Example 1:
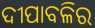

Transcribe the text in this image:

ଦୀପାବଳିର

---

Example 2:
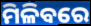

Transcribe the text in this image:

ମିଳିବରେ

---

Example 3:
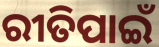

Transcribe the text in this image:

ରୀତିପାଇଁ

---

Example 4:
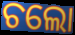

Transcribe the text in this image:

ଚଲୋ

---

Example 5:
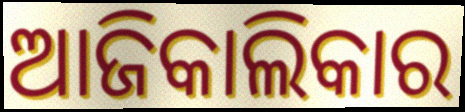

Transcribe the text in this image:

ଆଜିକାଲିକାର